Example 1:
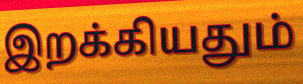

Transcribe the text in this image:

இறக்கியதும்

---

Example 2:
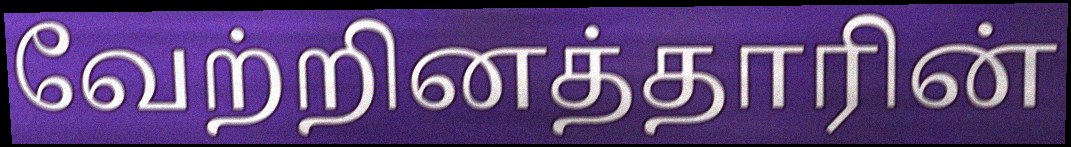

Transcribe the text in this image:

வேற்றினத்தாரின்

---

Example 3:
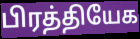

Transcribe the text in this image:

பிரத்தியேக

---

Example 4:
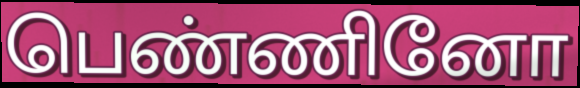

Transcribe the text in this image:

பெண்ணினோ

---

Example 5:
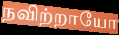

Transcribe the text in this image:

நவிற்றாயோ